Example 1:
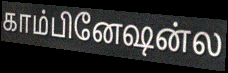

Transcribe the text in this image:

காம்பினேஷன்ல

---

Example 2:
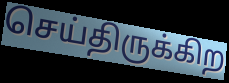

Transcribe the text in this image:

செய்திருக்கிற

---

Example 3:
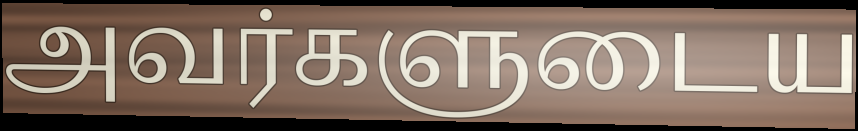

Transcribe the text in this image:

அவர்களுடைய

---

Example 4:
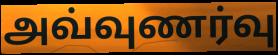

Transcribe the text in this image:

அவ்வுணர்வு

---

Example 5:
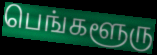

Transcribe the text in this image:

பெங்களூரு